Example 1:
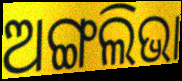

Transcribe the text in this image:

ଅଙ୍ଗଲିଭା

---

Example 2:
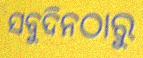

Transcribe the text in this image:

ସବୁଦିନଠାରୁ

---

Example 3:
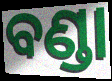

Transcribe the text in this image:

ବଣ୍ଡା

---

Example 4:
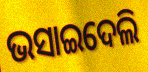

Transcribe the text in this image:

ଭସାଇଦେଲି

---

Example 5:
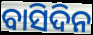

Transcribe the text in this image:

ବାସିଦିନ